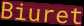
Biuret